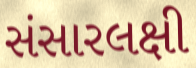
સંસારલક્ષી